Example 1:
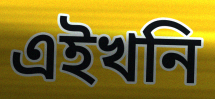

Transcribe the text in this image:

এইখনি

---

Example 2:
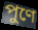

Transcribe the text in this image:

পুণে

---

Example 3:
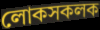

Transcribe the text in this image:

লোকসকলক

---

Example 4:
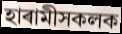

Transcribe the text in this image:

হাৰামীসকলক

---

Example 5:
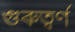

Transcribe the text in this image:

গুৰুত্ৱৰ্ণ